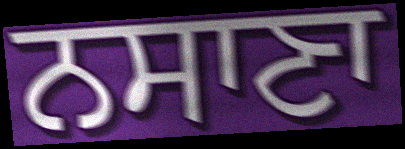
ਨਸਾਣਾ